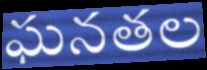
ఘనతల